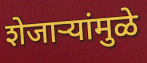
शेजाऱ्यांमुळे